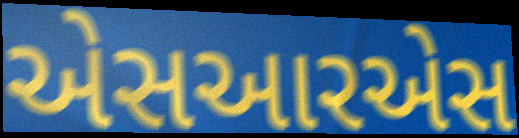
એસઆરએસ